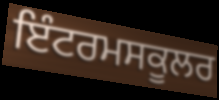
ਇੰਟਰਮਸਕੂਲਰ